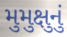
મુમુક્ષુનું